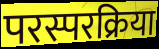
परस्परक्रिया